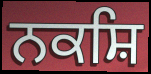
ਨਕਸ਼ਿ